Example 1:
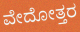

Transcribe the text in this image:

ವೇದೋತ್ತರ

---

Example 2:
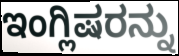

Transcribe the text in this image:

ಇಂಗ್ಲಿಷರನ್ನು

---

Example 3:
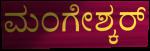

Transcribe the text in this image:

ಮಂಗೇಶ್ಕರ್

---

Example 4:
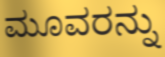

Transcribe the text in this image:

ಮೂವರನ್ನು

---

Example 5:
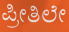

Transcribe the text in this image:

ಪ್ರೀತಿಲೇ